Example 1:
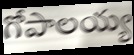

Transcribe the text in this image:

గోపాలయ్య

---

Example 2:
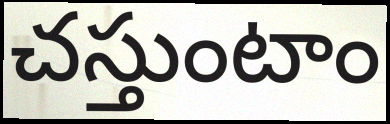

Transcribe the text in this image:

చస్తుంటాం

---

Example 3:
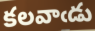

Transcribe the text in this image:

కలవాఁడు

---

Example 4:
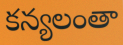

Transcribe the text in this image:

కన్యలంతా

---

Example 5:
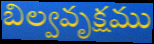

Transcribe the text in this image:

బిల్వవృక్షము